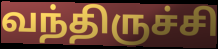
வந்திருச்சி